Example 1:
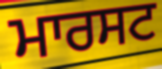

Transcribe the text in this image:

ਮਾਰਸਟ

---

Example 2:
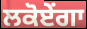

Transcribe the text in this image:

ਲਕੋਏਂਗਾ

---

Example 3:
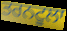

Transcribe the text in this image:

ਤਰਨਟੂਲਾ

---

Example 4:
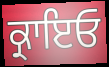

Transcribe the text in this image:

ਕ੍ਰਾਇਓ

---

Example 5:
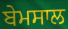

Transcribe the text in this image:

ਬੇਮਸਾਲ